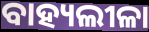
ବାହ୍ୟଲୀଳା